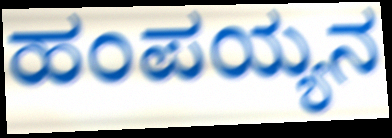
ಹಂಪಯ್ಯನ